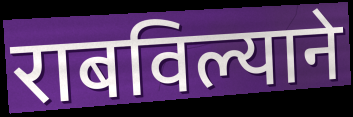
राबविल्याने